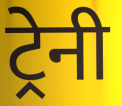
ट्रेनी